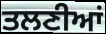
ਤਲਣੀਆਂ